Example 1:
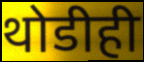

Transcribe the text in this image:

थोडीही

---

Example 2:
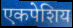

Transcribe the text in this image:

एकपेशिय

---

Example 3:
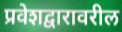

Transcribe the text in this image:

प्रवेशद्वारावरील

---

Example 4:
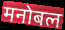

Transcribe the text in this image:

मनोबल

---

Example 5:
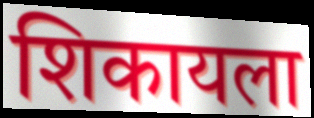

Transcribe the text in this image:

शिकायला